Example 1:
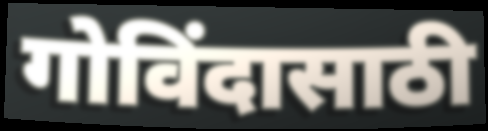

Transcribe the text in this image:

गोविंदासाठी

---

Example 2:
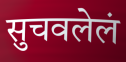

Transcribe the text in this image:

सुचवलेलं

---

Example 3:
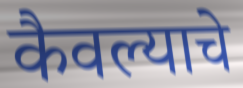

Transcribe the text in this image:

कैवल्याचे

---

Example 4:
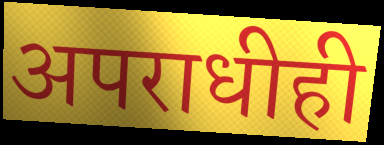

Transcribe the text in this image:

अपराधीही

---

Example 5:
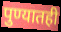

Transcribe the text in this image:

पुण्यातही